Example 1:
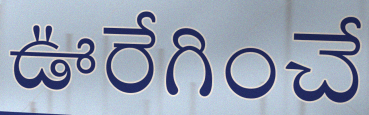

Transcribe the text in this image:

ఊరేగించే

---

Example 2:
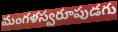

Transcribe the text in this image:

మంగళస్వరూపుడగు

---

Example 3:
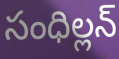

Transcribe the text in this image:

సంధిల్లన్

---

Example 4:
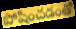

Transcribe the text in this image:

పోషించడంతో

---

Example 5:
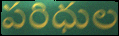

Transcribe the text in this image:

పరిధుల